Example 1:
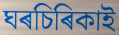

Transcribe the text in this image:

ঘৰচিৰিকাই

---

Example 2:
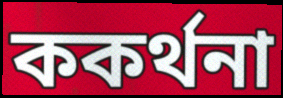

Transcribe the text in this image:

ককৰ্থনা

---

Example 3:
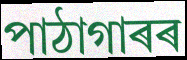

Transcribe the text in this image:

পাঠাগাৰৰ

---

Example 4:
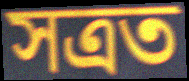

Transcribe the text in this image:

সত্ৰত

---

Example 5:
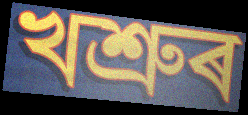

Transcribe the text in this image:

খশ্ৰুৰ